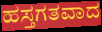
ಹಸ್ತಗತವಾದ